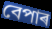
বেপাৰ